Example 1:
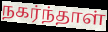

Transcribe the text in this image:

நகர்ந்தாள்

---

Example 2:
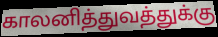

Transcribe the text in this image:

காலனித்துவத்துக்கு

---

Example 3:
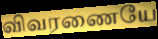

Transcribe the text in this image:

விவரணையே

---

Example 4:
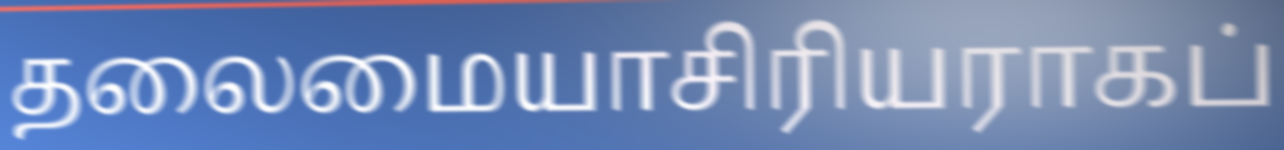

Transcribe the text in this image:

தலைமையாசிரியராகப்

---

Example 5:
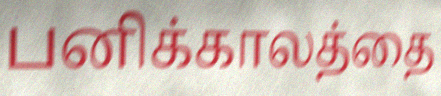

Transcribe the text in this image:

பனிக்காலத்தை